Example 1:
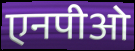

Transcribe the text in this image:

एनपीओ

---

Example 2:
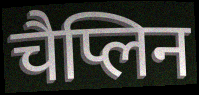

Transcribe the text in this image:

चैप्लिन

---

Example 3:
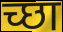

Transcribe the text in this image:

च्छा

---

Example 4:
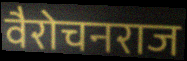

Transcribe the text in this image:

वैरोचनराज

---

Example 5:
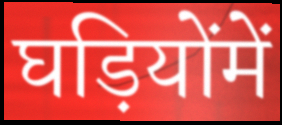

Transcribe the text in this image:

घड़ियोंमें